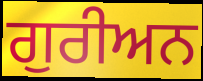
ਗੁਰੀਅਨ